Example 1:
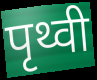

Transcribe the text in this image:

पृथ्वी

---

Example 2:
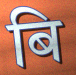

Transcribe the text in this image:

बि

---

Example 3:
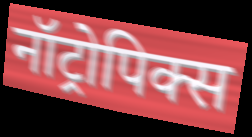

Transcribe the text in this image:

नॉट्रोपिक्स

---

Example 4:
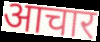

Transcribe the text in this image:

आचार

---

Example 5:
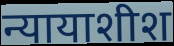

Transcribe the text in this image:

न्यायाशीश